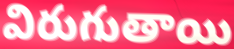
విరుగుతాయి